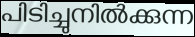
പിടിച്ചുനിൽക്കുന്ന